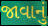
જાવાનું